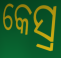
କେସ୍ର